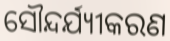
ସୌନ୍ଦର୍ଯ୍ୟୀକରଣ